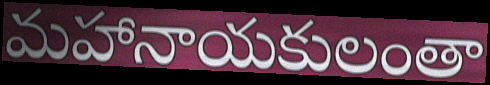
మహానాయకులంతా